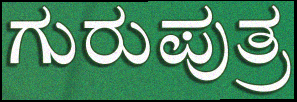
ಗುರುಪುತ್ರ